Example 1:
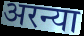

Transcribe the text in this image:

अरन्या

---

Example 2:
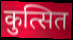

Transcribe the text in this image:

कुत्सित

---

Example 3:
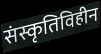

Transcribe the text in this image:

संस्कृतिविहीन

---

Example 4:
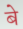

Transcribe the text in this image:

बे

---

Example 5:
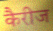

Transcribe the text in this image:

कैरीज